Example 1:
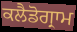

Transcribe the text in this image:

ਕਲੈਡੋਗ੍ਰਾਮ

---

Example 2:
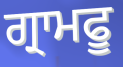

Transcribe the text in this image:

ਗ੍ਰਾਮਫੂ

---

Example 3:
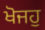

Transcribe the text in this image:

ਖੋਜਹੁ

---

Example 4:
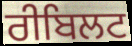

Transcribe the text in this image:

ਰੀਬਿਲਟ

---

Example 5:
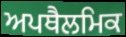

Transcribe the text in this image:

ਅਪਥੈਲਮਿਕ